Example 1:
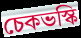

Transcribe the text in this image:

চেকভস্কি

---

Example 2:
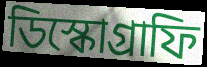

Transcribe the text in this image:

ডিস্কোগ্রাফি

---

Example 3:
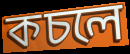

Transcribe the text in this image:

কচলে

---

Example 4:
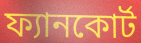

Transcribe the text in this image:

ফ্যানকোর্ট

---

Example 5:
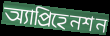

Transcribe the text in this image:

অ্যাপ্রিহেনশন